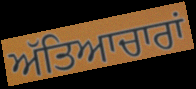
ਅੱਤਿਆਚਾਰਾਂ